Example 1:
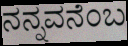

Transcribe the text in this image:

ನನ್ನವನೆಂಬ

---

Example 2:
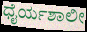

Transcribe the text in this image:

ಧೈರ್ಯಶಾಲೀ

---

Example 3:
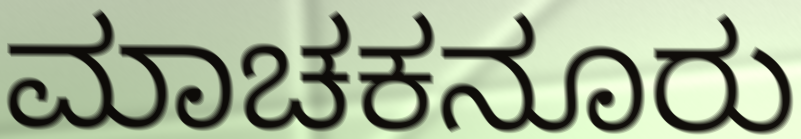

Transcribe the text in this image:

ಮಾಚಕನೂರು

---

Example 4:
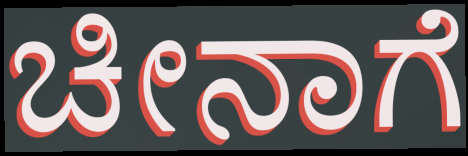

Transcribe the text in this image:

ಚೀನಾಗೆ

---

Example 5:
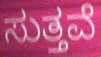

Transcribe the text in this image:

ಸುತ್ತವೆ